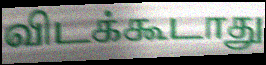
விடக்கூடாது